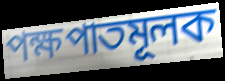
পক্ষপাতমূলক